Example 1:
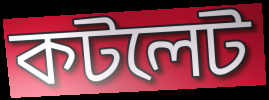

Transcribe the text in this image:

কটলেট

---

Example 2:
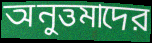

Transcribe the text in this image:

অনুত্তমাদের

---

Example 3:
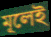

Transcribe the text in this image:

মূলেই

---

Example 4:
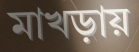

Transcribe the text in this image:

মাখড়ায়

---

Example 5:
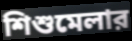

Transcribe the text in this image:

শিশুমেলার